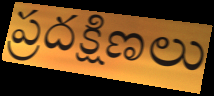
ప్రదక్షిణలు